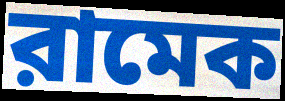
রামেক